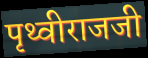
पृथ्वीराजजी